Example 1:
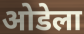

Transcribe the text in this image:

ओडेला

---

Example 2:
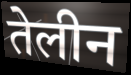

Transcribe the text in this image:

तेलीन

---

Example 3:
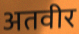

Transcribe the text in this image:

अतवीर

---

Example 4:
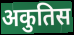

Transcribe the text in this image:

अकुतिस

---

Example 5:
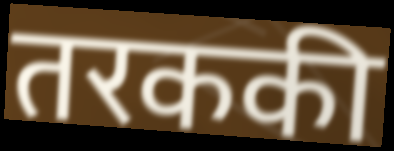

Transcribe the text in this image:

तरककी